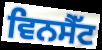
ਵਿਨਸੈੱਟ